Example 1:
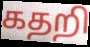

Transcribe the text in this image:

கதறி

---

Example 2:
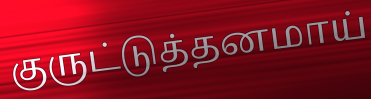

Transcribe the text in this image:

குருட்டுத்தனமாய்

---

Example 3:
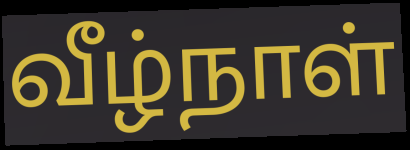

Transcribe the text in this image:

வீழ்நாள்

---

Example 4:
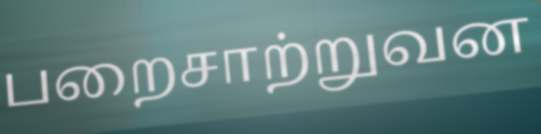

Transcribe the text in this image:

பறைசாற்றுவன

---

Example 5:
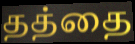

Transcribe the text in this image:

தத்தை